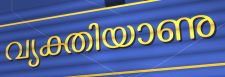
വ്യക്തിയാണു